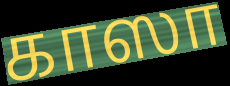
காஸா